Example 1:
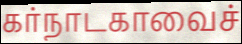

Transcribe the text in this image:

கர்நாடகாவைச்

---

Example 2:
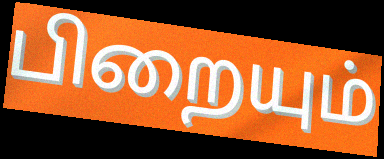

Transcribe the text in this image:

பிறையும்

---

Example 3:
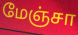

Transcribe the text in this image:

மேஞ்சா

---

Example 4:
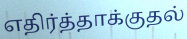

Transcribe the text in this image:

எதிர்த்தாக்குதல்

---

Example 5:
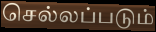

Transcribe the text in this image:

செல்லப்படும்